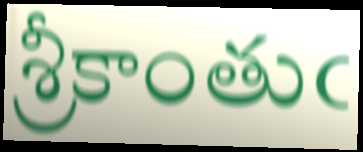
శ్రీకాంతుఁ